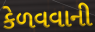
કેળવવાની